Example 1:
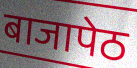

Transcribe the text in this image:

बाजापेठ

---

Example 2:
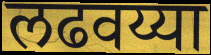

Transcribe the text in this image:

लढवय्या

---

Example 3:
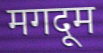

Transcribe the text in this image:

मगदूम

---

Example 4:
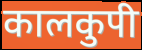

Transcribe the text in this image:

कालकुपी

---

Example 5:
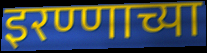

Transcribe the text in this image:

इरण्णाच्या